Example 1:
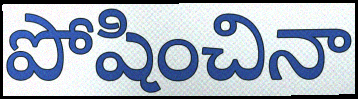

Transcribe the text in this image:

పోషించినా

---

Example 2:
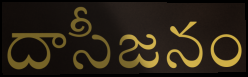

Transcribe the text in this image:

దాసీజనం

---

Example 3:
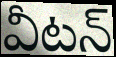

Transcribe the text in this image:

వీటన్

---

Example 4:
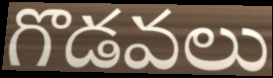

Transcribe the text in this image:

గొడవలు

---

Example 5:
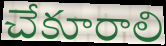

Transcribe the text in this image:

చేకూరాలి